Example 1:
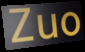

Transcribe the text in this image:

Zuo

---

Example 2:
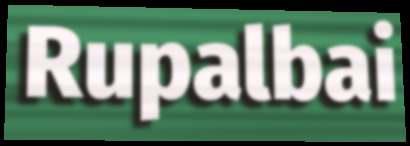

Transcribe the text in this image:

Rupalbai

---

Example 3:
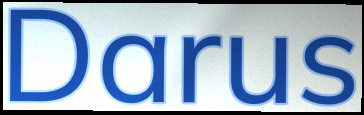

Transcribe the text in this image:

Darus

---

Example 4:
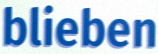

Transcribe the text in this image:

blieben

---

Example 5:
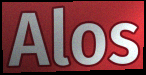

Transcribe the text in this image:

Alos